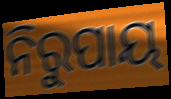
ନିରୁପାୟ